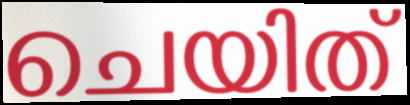
ചെയിത്